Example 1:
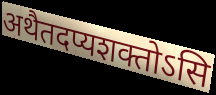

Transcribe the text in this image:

अथैतदप्यशक्तोऽसि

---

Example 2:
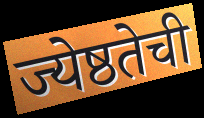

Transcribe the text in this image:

ज्येष्ठतेची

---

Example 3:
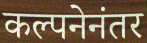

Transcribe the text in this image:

कल्पनेनंतर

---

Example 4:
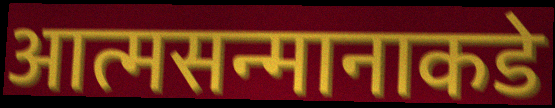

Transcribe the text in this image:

आत्मसन्मानाकडे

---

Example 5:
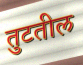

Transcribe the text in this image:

तुटतील